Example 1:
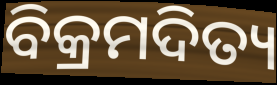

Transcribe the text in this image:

ବିକ୍ରମଦିତ୍ୟ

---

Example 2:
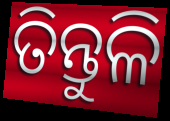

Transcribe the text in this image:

ତିନ୍ତୁଳି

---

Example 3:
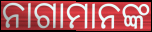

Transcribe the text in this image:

ନାଗାମାନଙ୍କ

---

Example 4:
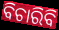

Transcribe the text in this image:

ବିଚାରିବି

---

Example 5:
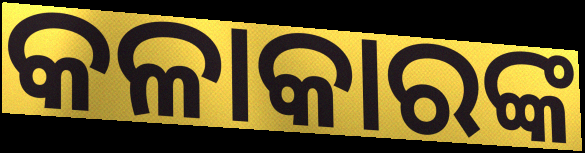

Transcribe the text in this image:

କଳାକାରଙ୍କ